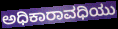
ಅಧಿಕಾರಾವಧಿಯು